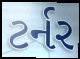
ટર્નર